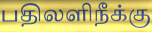
பதிலளிநீக்கு